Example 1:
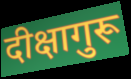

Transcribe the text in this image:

दीक्षागुरू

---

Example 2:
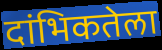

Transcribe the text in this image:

दांभिकतेला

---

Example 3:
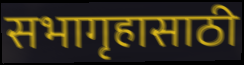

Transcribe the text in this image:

सभागृहासाठी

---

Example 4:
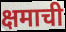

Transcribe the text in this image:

क्षमाची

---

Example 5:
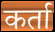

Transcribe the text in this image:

कर्ता